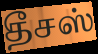
தீசஸ்